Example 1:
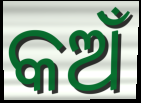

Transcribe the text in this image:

କଅଁ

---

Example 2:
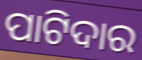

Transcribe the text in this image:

ପାଟିଦାର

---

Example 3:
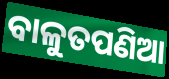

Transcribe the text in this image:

ବାଳୁତପଣିଆ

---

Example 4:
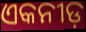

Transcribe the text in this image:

ଏକନୀଡ଼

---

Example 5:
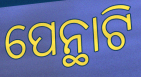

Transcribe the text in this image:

ପେନ୍ଥାଟି